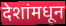
देशांमधून